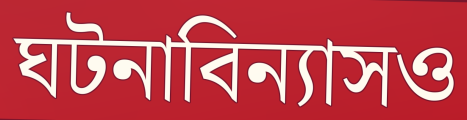
ঘটনাবিন্যাসও